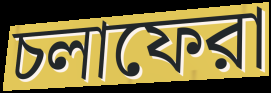
চলাফেরা